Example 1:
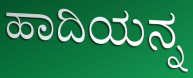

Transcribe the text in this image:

ಹಾದಿಯನ್ನ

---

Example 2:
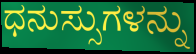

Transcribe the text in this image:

ಧನುಸ್ಸುಗಳನ್ನು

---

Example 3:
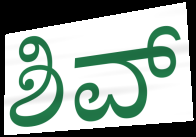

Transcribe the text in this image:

ಶಿವ್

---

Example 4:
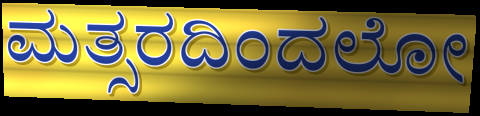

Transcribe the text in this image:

ಮತ್ಸರದಿಂದಲೋ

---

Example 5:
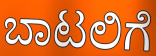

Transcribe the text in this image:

ಬಾಟಲಿಗೆ